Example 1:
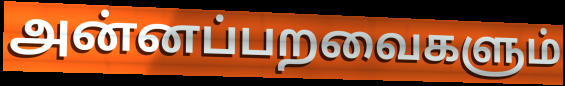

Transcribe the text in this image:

அன்னப்பறவைகளும்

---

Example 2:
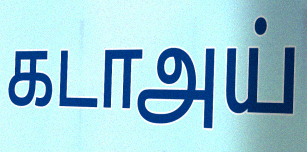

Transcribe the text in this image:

கடாஅய்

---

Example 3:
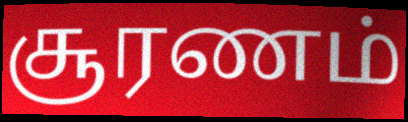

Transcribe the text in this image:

சூரணம்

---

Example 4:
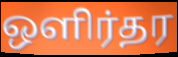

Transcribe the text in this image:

ஒளிர்தர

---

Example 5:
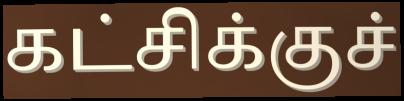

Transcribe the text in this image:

கட்சிக்குச்